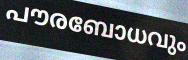
പൗരബോധവും